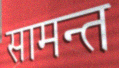
सामन्त